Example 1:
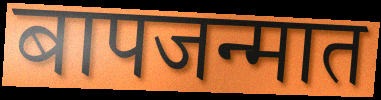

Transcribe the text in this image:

बापजन्मात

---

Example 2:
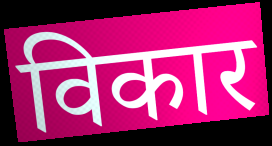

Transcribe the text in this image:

विकार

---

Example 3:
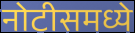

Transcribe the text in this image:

नोटीसमध्ये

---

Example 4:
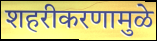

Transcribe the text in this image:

शहरीकरणामुळे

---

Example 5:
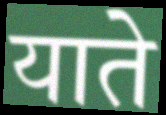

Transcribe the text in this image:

याते